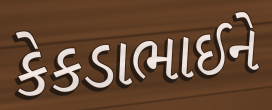
કેકડાભાઈને